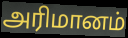
அரிமானம்